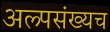
अल्पसंख्यच